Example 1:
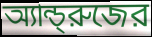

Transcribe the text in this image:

অ্যান্ড্‌রুজের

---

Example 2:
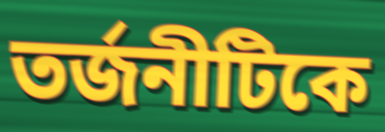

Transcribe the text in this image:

তর্জনীটিকে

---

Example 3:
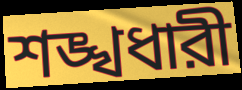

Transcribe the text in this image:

শঙ্খধারী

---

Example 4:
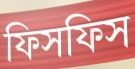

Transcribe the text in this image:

ফিসফিস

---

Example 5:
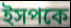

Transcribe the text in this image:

ইসপকে